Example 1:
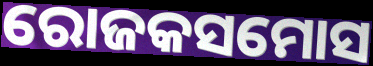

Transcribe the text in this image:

ରୋଜକସମୋସ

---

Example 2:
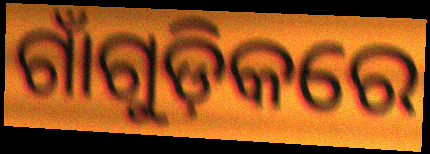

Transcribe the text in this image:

ଗାଁଗୁଡ଼ିକରେ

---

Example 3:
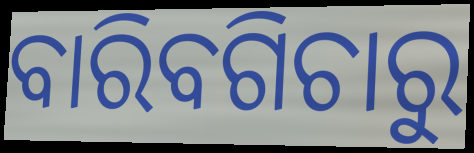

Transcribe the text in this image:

ବାରିବଗିଚାରୁ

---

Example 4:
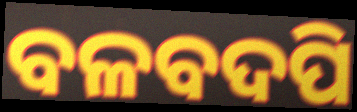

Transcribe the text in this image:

ବଳବଦପି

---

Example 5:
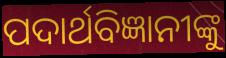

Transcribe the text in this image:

ପଦାର୍ଥବିଜ୍ଞାନୀଙ୍କୁ